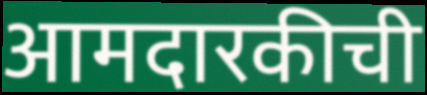
आमदारकीची